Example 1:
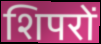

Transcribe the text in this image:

शिपरों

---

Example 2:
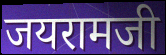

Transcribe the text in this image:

जयरामजी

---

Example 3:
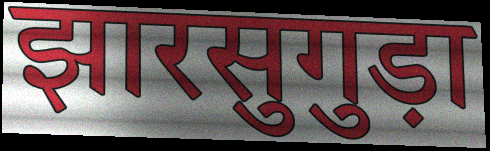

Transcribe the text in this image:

झारसुगुड़ा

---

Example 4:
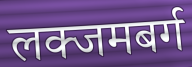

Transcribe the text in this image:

लक्जमबर्ग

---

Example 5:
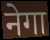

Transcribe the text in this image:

नेगा